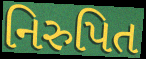
નિરુપિત